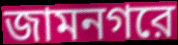
জামনগরে